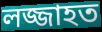
লজ্জাহত